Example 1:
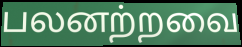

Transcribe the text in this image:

பலனற்றவை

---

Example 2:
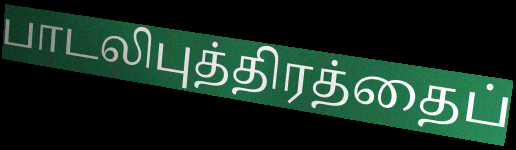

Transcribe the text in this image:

பாடலிபுத்திரத்தைப்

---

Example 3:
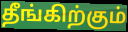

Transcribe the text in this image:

தீங்கிற்கும்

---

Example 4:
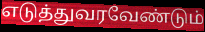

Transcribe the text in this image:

எடுத்துவரவேண்டும்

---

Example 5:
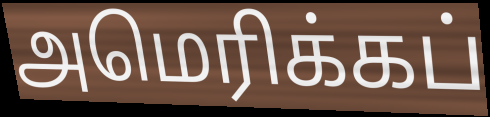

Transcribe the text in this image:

அமெரிக்கப்